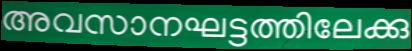
അവസാനഘട്ടത്തിലേക്കു